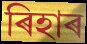
ৰিহাৰ